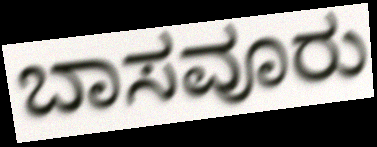
ಬಾಸವೂರು